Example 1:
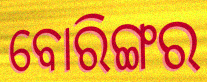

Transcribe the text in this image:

ବୋରିଙ୍ଗର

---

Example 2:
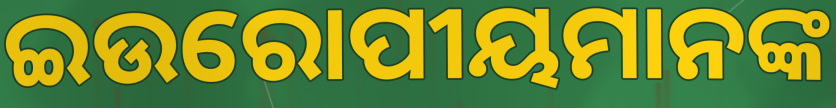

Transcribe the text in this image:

ଇଉରୋପୀୟମାନଙ୍କ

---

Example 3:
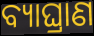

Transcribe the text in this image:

ବ୍ୟାଘ୍ରାଣ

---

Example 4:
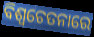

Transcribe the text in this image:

ବିଶ୍ୱଚେତନାରେ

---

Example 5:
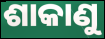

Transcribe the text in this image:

ଶାକାଣୁ